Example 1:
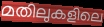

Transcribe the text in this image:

മതിലുകളിലെ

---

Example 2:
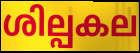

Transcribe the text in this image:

ശില്പകല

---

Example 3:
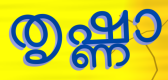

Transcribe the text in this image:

തൃഷ്ണാ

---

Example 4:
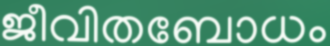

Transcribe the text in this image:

ജീവിതബോധം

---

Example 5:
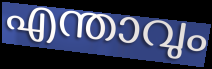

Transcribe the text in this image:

എന്താവും